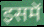
इसमें